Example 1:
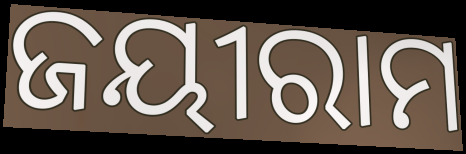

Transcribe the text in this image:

ଜୟୀରାମ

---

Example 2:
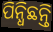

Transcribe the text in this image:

ପିନ୍ଧିଛନ୍ତି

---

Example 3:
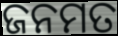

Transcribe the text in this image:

ଜନମତ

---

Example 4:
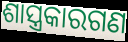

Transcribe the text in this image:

ଶାସ୍ତ୍ରକାରଗଣ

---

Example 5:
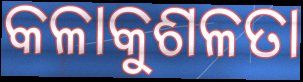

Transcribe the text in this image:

କଳାକୁଶଳତା